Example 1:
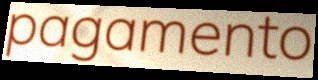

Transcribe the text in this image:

pagamento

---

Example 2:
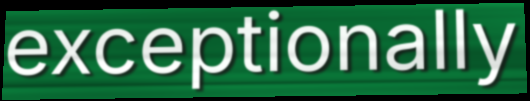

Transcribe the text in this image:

exceptionally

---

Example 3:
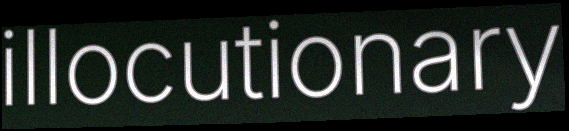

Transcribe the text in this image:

illocutionary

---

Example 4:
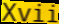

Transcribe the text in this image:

Xvii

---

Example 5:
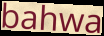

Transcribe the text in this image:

bahwa